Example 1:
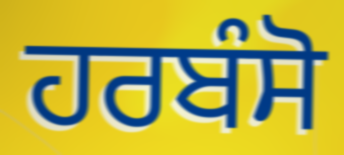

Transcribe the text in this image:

ਹਰਬੰਸੋ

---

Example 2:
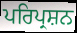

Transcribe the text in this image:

ਪਰਿਪ੍ਰਸ਼ਨ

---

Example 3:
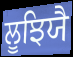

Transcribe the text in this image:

ਲੂਝਿਯੈ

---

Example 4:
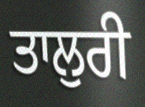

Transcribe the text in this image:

ਤਾਲੁਰੀ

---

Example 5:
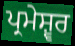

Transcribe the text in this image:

ਪ੍ਰਮੇਸ਼੍ਵਰ